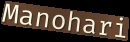
Manohari